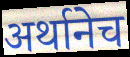
अर्थानेच